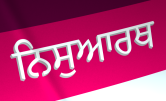
ਨਿਸੁਆਰਥ